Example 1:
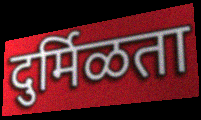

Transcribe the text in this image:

दुर्मिळता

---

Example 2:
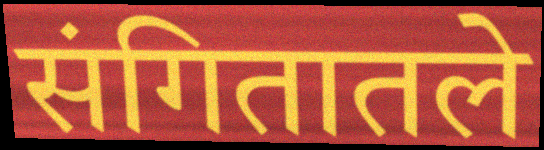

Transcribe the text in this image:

संगितातले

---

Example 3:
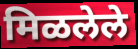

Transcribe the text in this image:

मिळलेले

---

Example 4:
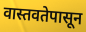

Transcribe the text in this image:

वास्तवतेपासून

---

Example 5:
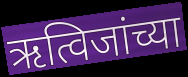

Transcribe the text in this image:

ऋत्विजांच्या